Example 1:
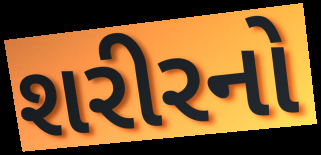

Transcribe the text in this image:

શરીરનો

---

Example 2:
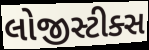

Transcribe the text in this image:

લોજીસ્ટીક્સ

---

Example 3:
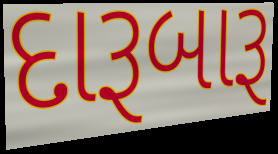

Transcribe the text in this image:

દારૂબારૂ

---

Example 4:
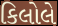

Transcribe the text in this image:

કિલોલે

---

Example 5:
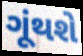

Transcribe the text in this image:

ગૂંથશે